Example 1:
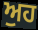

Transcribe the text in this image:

ਅੁਹ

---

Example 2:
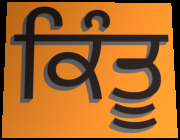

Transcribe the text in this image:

ਕਿੰਤੂ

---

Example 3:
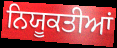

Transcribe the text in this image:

ਨਿਯੂਕਤੀਆਂ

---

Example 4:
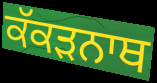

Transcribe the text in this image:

ਕੱਕੜਨਾਥ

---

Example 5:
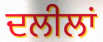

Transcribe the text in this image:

ਦਲੀਲਾਂ